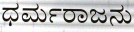
ಧರ್ಮರಾಜನು